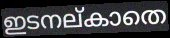
ഇടനല്കാതെ